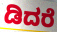
ಡಿದರೆ